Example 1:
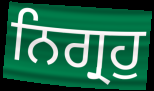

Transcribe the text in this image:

ਨਿਗ੍ਰਹੁ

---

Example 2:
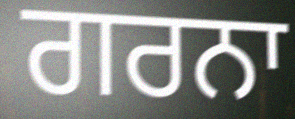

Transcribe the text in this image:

ਗਰਨਾ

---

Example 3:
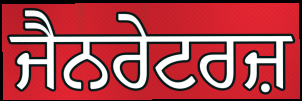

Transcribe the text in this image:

ਜੈਨਰੇਟਰਜ਼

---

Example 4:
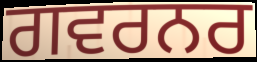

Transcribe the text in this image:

ਗਵਰਨਰ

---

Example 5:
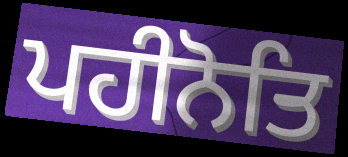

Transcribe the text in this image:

ਪਹੀਨੋਤਿ